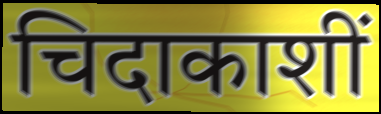
चिदाकाशीं